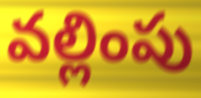
వల్లింపు